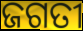
ଜଗତୀ